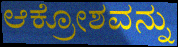
ಆಕ್ರೋಶವನ್ನು